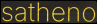
satheno